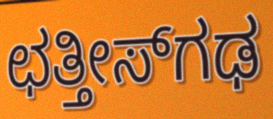
ಛತ್ತೀಸ್‌ಗಢ